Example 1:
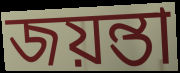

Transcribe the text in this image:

জয়ন্তা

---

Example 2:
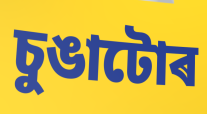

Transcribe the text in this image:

চুঙাটোৰ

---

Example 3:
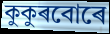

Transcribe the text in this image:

কুকুৰবোৰে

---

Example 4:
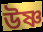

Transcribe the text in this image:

উষ্ণ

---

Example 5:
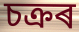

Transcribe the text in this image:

চক্ৰৰ